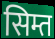
सिम्त